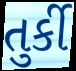
તુર્કી